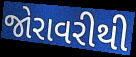
જોરાવરીથી